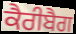
ਕੈਰੀਬੈਗ